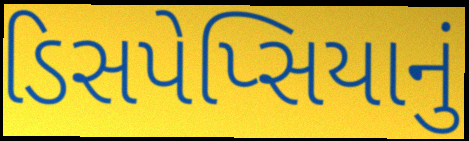
ડિસપેપ્સિયાનું